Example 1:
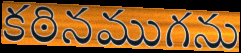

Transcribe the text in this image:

కఠినముగను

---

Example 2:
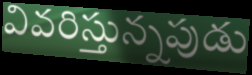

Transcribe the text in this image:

వివరిస్తున్నపుడు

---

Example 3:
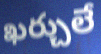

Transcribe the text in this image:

ఖర్చులే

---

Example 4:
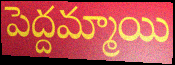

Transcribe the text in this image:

పెద్దమ్మాయి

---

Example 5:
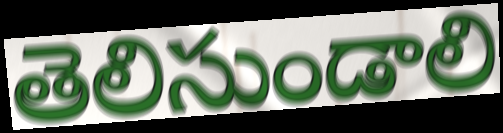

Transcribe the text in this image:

తెలిసుండాలి